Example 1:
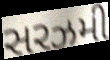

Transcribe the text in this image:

સરઝમી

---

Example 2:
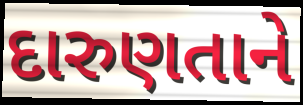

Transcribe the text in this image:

દારુણતાને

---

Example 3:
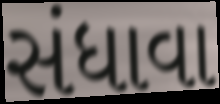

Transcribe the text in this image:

સંધાવા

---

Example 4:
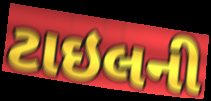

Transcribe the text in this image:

ટાઇલની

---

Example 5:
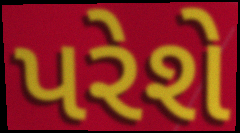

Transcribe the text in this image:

પરેશે